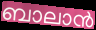
ബാലാൻ